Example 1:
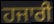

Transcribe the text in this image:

ਹਜਾਰੀ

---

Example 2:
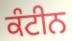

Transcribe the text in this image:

ਕੰਟੀਨ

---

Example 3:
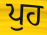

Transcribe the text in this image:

ਪੁਹ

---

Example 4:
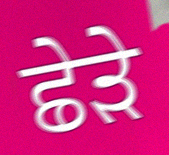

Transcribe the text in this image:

ਛੇੜੇ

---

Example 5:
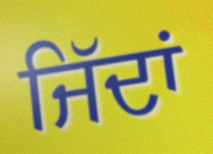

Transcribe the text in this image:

ਜਿੱਦਾਂ